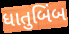
ધાતુબિંબ